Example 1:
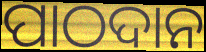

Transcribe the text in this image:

ପାଠଦାନ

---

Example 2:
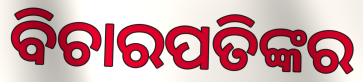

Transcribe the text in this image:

ବିଚାରପତିଙ୍କର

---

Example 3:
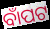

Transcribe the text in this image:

ବାଁପଟ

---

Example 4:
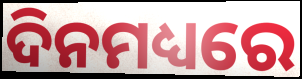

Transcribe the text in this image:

ଦିନମଧ୍ୟରେ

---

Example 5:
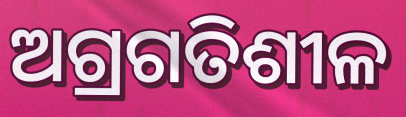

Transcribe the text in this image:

ଅଗ୍ରଗତିଶୀଳ